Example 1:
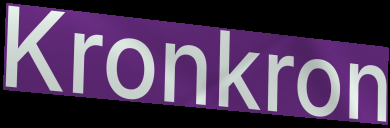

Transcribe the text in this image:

Kronkron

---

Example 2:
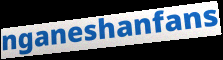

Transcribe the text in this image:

nganeshanfans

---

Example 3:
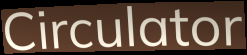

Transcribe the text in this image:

Circulator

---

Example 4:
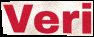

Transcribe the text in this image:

Veri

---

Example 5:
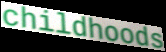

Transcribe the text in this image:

childhoods